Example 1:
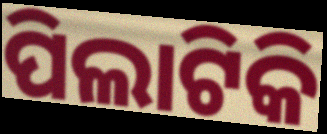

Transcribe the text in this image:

ପିଲାଟିକି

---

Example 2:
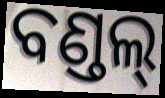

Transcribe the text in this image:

ବଣ୍ଡଲ୍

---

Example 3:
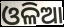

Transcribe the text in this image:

ଓଳିଆ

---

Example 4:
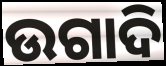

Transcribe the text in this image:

ଉଗାଦି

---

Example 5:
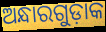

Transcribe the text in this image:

ଅନ୍ଧାରଗୁଡ଼ାକ